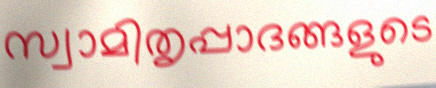
സ്വാമിതൃപ്പാദങ്ങളുടെ